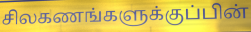
சிலகணங்களுக்குப்பின்